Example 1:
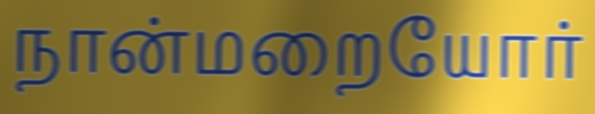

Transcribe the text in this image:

நான்மறையோர்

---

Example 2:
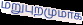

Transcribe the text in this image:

மறுபுறமுமாக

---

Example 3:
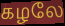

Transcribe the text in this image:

கழலே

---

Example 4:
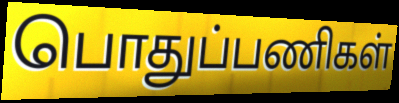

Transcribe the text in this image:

பொதுப்பணிகள்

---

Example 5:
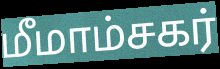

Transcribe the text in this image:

மீமாம்சகர்